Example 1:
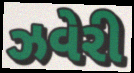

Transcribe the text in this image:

ઝવેરી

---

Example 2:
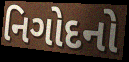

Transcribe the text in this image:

નિગોદનો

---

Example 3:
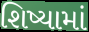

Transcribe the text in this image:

શિષ્યામાં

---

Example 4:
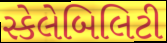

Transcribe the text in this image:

સ્કેલેબિલિટી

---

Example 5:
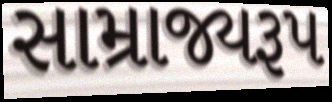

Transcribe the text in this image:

સામ્રાજ્યરૂપ